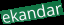
ekandar